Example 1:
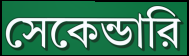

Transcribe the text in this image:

সেকেন্ডারি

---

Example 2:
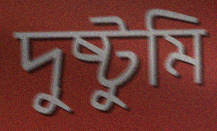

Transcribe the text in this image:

দুষ্টুমি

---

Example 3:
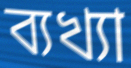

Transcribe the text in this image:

ব্যখ্যা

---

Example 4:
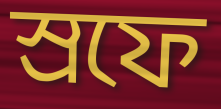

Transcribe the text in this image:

স্রফে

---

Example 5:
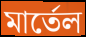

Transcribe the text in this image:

মার্তেল